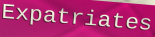
Expatriates